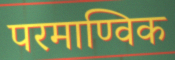
परमाण्विक